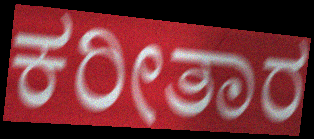
ಕರೀತಾರ